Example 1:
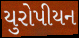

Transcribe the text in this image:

યુરોપીયન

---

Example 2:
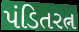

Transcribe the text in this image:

પંડિતરત્ન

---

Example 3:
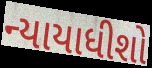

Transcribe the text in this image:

ન્યાયાધીશો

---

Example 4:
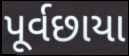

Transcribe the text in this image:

પૂર્વછાયા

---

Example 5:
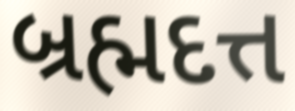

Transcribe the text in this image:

બ્રહ્મદત્ત